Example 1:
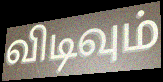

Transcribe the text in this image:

விடிவும்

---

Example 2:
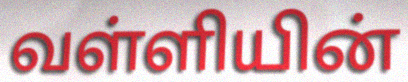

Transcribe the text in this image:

வள்ளியின்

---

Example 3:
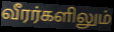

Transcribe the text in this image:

வீரர்களிலும்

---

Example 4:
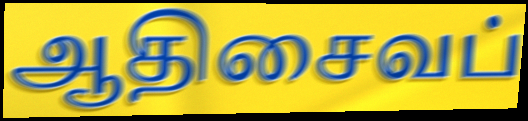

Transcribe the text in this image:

ஆதிசைவப்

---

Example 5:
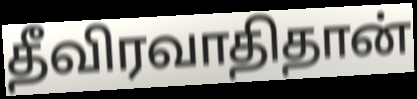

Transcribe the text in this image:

தீவிரவாதிதான்